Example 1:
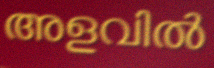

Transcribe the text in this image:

അളവിൽ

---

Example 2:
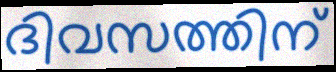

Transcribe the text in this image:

ദിവസത്തിന്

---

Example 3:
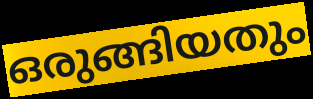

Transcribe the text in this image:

ഒരുങ്ങിയതും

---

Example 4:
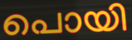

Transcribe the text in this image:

പൊയി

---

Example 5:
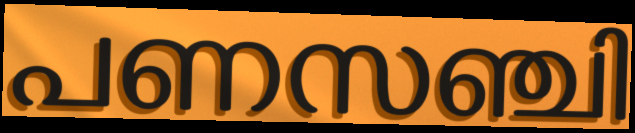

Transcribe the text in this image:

പണസഞ്ചി